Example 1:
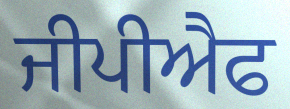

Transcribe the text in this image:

ਜੀਪੀਐਫ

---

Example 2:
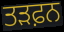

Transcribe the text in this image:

ਤੜਫ਼ਨ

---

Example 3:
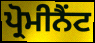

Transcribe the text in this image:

ਪ੍ਰੋਮੀਨੈਂਟ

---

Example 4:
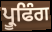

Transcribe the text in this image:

ਪ੍ਰੂਫਿੰਗ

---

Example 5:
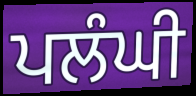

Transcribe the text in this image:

ਪਲੰਘੀ